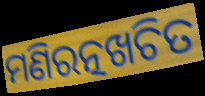
ମଣିରତ୍ନଖଚିତ